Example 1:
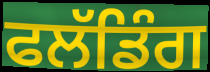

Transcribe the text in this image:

ਫਲੱਡਿੰਗ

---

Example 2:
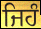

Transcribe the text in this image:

ਜਿਹੰ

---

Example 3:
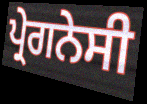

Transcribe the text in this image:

ਪ੍ਰੇਗਨੇਸੀ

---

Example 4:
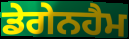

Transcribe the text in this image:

ਡੇਗੇਨਹੈਮ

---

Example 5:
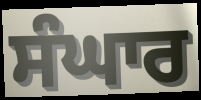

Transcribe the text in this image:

ਸੰਘਾਰ